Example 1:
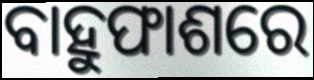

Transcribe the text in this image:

ବାହୁଫାଶରେ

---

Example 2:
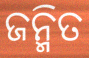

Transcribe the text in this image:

ଜନ୍ମିତ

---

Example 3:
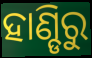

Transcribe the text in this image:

ହାଣ୍ଡିରୁ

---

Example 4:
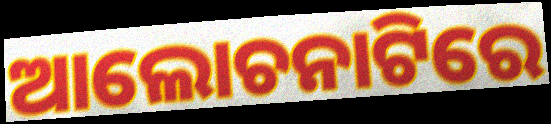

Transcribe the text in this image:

ଆଲୋଚନାଟିରେ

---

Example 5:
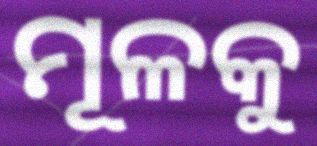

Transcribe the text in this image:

ମୂଳକୁ